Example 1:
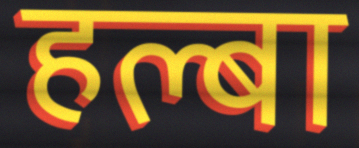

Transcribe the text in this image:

हल्बा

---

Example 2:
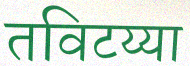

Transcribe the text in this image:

तविटय्या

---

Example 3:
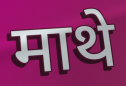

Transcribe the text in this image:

माथे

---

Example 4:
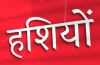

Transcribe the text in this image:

हशियों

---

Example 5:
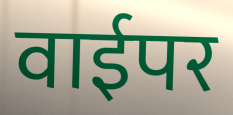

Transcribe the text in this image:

वाईपर